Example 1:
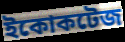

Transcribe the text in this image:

ইকোকটেজ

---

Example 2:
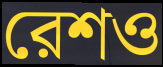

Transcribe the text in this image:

রেশও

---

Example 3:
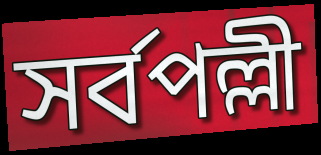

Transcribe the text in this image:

সর্বপল্লী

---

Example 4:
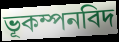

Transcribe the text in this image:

ভূকম্পনবিদ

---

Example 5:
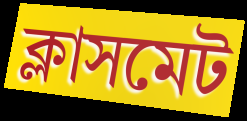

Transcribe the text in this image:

ক্লাসমেট